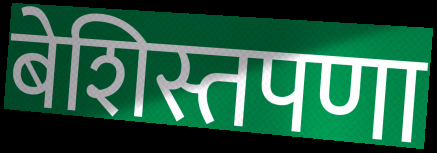
बेशिस्तपणा